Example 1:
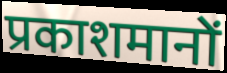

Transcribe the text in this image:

प्रकाशमानों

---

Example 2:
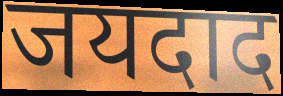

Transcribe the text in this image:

जयदाद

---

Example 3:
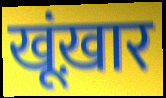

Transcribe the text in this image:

खूंख़ार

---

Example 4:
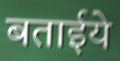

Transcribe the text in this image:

बताईये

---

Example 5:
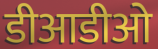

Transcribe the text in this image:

डीआडीओ